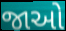
જાઓ